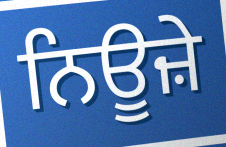
ਨਿਊਜ਼ੇ